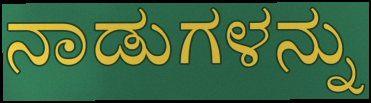
ನಾಡುಗಳನ್ನು